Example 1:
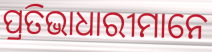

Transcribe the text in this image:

ପ୍ରତିଭାଧାରୀମାନେ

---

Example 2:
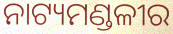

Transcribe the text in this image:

ନାଟ୍ୟମଣ୍ଡଳୀର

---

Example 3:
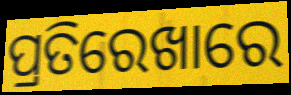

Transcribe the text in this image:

ପ୍ରତିରେଖାରେ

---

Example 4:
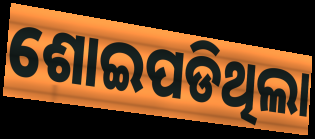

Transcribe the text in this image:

ଶୋଇପଡିଥିଲା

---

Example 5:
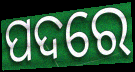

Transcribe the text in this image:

ପଦରେ